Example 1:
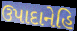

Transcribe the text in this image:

ઉપાદાનેહિ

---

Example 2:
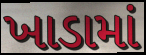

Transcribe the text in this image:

ખાડામાં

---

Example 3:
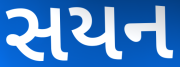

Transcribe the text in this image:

સયન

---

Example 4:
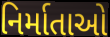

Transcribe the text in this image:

નિર્માતાઓ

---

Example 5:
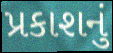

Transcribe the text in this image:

પ્રકાશનું